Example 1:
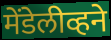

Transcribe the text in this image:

मेंडेलीव्हने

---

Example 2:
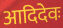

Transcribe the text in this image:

आदिदेवः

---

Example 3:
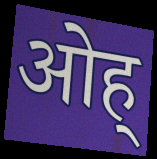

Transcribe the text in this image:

ओह्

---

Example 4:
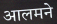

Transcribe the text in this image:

आलमने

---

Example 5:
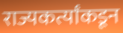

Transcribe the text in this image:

राज्यकर्त्यांकडून